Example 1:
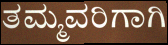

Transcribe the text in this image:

ತಮ್ಮವರಿಗಾಗಿ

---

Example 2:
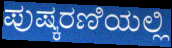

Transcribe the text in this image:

ಪುಷ್ಕರಣಿಯಲ್ಲಿ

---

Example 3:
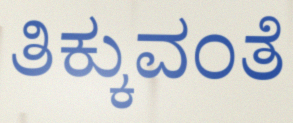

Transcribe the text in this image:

ತಿಕ್ಕುವಂತೆ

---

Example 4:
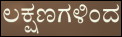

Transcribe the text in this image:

ಲಕ್ಷಣಗಳಿಂದ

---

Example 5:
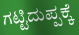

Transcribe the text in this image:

ಗಟ್ಟಿದುಪ್ಪಕ್ಕೆ